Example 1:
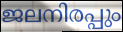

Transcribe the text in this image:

ജലനിരപ്പും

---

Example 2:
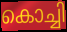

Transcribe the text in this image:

കൊച്ചി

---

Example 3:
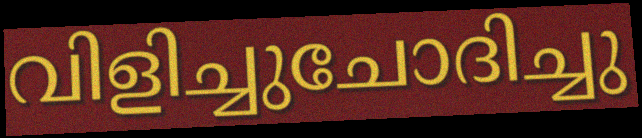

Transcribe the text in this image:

വിളിച്ചുചോദിച്ചു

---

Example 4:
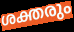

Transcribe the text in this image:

ശക്തരും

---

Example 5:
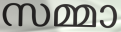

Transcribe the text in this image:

സമ്മാ